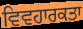
ਵਿਵਹਾਰਕਤਾ